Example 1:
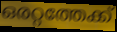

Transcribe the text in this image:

ഒരറ്റത്തേക്ക്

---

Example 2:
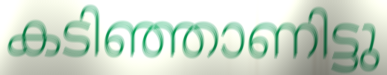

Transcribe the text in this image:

കടിഞ്ഞാണിട്ടു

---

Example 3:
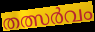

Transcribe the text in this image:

തത്സർവം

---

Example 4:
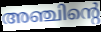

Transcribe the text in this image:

അഞ്ചിന്റെ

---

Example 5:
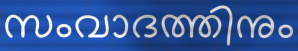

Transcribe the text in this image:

സംവാദത്തിനും